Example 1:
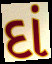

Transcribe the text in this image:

દાં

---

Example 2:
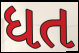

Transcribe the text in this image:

ધત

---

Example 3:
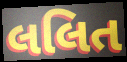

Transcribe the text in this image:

લલિત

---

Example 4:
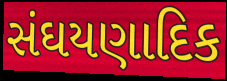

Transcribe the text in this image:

સંઘયણાદિક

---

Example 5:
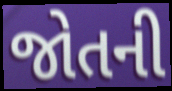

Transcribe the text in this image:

જોતની